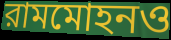
রামমোহনও